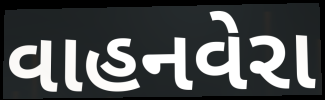
વાહનવેરા